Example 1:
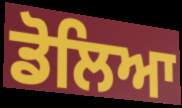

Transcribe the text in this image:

ਡੋਲਿਆ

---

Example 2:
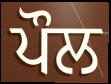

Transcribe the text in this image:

ਪੌਲ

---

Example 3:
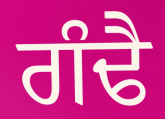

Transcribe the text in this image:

ਗੰਢੈ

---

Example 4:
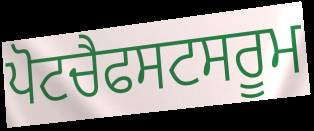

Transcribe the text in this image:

ਪੋਟਚੈਫਸਟਸਰੂਮ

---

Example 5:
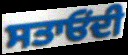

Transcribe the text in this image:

ਸਤਾਓਂਦੀ